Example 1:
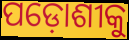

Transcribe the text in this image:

ପଡ଼ୋଶୀକୁ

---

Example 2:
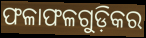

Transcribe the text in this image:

ଫଳାଫଳଗୁଡ଼ିକର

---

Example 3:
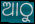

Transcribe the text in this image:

ଆଠୁ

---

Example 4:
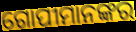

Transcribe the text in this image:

ଗୋପୀମାନଙ୍କର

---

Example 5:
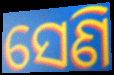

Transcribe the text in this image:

ସେଣି